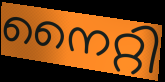
നൈറ്റി